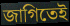
জাগিতেই